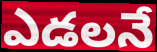
ఎడలనే